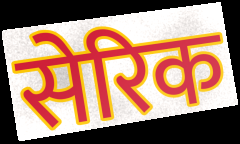
सेरिक